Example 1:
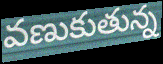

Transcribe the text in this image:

వణుకుతున్న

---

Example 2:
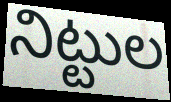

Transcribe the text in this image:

నిట్టుల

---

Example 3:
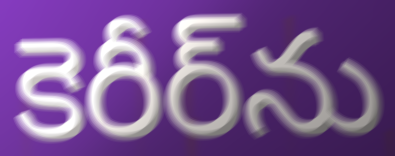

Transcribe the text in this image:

కెరీర్‌ను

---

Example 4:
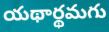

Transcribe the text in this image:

యథార్థమగు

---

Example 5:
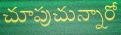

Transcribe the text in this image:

చూపుచున్నారో